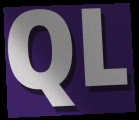
QL